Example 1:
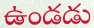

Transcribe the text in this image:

ఉండడు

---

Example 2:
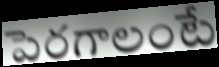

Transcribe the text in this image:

పెరగాలంటే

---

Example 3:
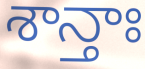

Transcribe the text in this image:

శాన్తాః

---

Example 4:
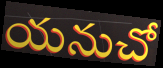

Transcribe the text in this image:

యనుచో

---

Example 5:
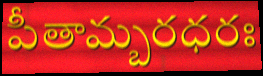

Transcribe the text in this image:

పీతామ్బరధరః